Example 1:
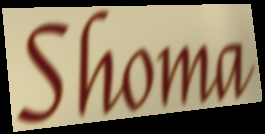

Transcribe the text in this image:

Shoma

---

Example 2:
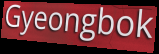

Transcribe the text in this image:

Gyeongbok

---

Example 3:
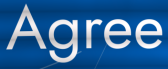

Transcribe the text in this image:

Agree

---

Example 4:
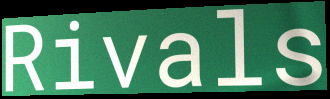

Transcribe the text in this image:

Rivals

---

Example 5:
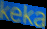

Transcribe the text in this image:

keka